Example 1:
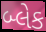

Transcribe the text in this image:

બ્લેક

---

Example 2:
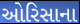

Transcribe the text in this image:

ઓરિસાના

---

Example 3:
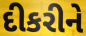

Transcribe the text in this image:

દીકરીને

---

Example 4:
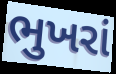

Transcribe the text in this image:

ભુખરાં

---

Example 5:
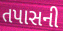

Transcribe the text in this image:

તપાસની